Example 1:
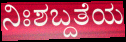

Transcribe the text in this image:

ನಿಃಶಬ್ದತೆಯ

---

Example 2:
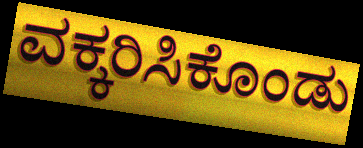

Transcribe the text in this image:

ವಕ್ಕರಿಸಿಕೊಂಡು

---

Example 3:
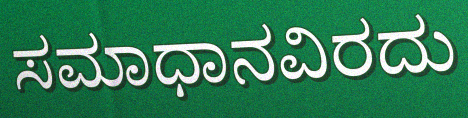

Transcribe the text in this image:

ಸಮಾಧಾನವಿರದು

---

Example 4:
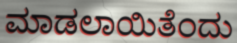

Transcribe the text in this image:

ಮಾಡಲಾಯಿತೆಂದು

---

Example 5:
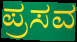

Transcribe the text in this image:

ಪ್ರಸವ